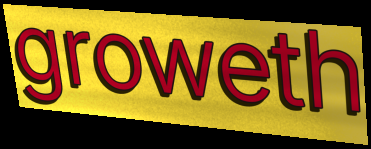
groweth